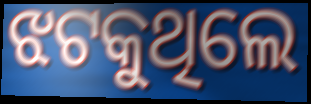
ଝଟକୁଥିଲେ